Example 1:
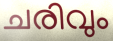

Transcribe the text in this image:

ചരിവും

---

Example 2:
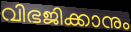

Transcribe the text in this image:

വിഭജിക്കാനും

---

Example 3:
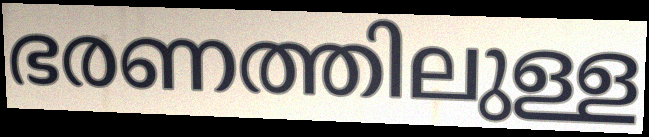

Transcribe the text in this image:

ഭരണത്തിലുള്ള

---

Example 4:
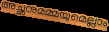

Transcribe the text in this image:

അച്ഛനുമമ്മയുമെല്ലാം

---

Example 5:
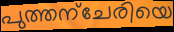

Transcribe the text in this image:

പുത്തന്ചേരിയെ